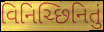
વિનિચ્છિનિતું